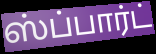
ஸ்ப்பார்ட்